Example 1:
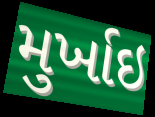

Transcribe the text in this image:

મુર્ખાઇ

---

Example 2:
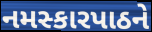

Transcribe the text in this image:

નમસ્કારપાઠને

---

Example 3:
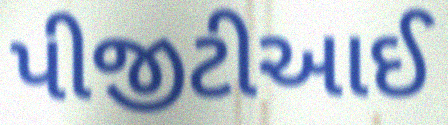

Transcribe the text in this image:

પીજીટીઆઈ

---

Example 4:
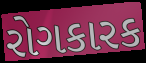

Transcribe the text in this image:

રોગકારક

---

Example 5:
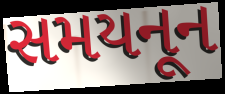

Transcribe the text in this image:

સમયનૂન